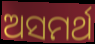
ଅସମର୍ଥ